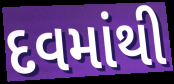
દવમાંથી